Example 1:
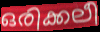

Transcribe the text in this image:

ഒരിക്കലീ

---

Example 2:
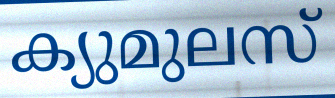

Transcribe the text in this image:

ക്യുമുലസ്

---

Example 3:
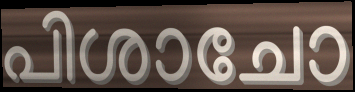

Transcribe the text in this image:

പിശാചോ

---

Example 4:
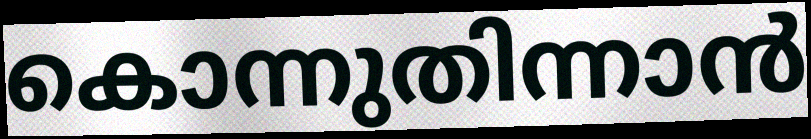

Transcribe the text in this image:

കൊന്നുതിന്നാൻ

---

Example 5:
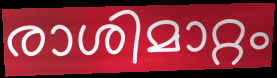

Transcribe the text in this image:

രാശിമാറ്റം